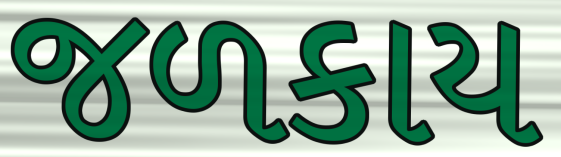
જળકાય